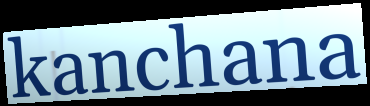
kanchana